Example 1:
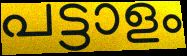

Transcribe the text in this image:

പട്ടാളം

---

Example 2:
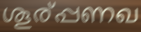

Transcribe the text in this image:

ശൂര്പ്പണഖ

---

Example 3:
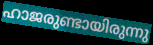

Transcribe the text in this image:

ഹാജരുണ്ടായിരുന്നു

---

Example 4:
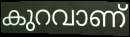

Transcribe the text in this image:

കുറവാണ്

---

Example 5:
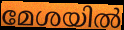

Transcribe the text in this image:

മേശയിൽ